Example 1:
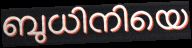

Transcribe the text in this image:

ബുധിനിയെ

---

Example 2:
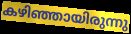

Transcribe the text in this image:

കഴിഞ്ഞായിരുന്നു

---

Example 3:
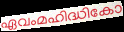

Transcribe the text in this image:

ഏവംമഹിദ്ധികോ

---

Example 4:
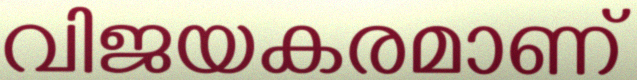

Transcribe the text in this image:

വിജയകരമാണ്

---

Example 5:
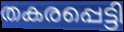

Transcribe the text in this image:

തകരപ്പെട്ടി